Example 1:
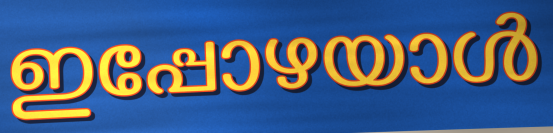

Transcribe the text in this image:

ഇപ്പോഴയാൾ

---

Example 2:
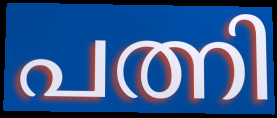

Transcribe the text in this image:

പത്നി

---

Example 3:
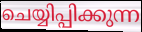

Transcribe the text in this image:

ചെയ്യിപ്പിക്കുന്ന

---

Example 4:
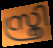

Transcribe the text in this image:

സ്ത്രി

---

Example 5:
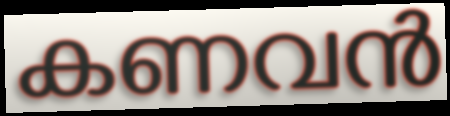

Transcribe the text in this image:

കണവൻ